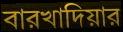
বারখাদিয়ার